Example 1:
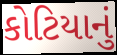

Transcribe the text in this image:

કોટિયાનું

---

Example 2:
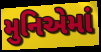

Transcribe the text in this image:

મુનિએમાં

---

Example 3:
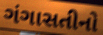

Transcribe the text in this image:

ગંગાસતીનો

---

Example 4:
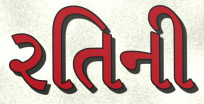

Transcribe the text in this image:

રતિની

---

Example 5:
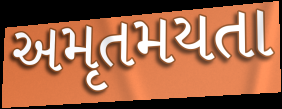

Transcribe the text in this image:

અમૃતમયતા